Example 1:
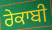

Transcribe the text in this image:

ਰੇਕਾਬੀ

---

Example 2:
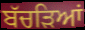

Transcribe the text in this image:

ਬੱਚੜਿਆਂ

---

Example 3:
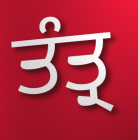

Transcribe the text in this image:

ਤੰਤ੍ਰ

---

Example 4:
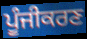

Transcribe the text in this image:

ਪੂੰਜੀਕਰਣ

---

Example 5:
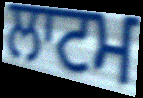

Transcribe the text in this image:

ਲਾਟਮ